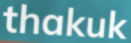
thakuk